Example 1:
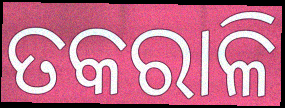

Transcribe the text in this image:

ତକରାଳି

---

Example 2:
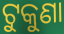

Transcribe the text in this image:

ଟୁକୁଣା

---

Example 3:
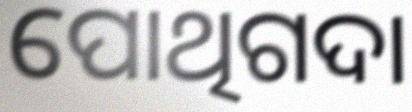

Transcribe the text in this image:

ପୋଥିଗଦା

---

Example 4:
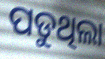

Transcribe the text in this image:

ପଡୁଥିଲା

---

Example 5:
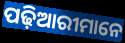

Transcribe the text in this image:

ପଢ଼ିଆରୀମାନେ